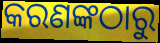
କରଣଙ୍କଠାରୁ